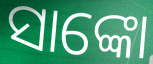
ସାଙ୍କୋ